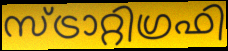
സ്ട്രാറ്റിഗ്രഫി